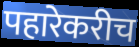
पहारेकरीच